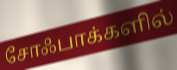
சோஃபாக்களில்